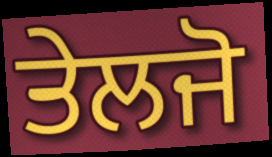
ਤੇਲਜੋ